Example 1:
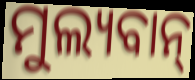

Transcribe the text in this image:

ମୁଲ୍ୟବାନ୍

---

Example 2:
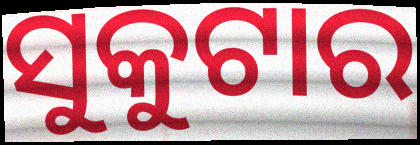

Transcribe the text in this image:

ସୁକୁଟାର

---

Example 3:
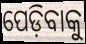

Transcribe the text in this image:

ପେଡ଼ିବାକୁ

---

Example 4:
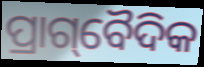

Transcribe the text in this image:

ପ୍ରାଗ୍‌ବୈଦିକ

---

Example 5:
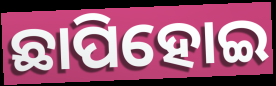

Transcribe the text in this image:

ଛାପିହୋଇ